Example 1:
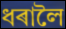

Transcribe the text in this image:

ধৰালৈ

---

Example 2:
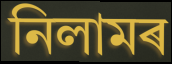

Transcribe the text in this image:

নিলামৰ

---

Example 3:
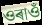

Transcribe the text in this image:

ওৰাওঁ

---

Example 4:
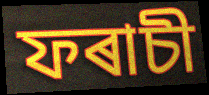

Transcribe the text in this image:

ফৰাচী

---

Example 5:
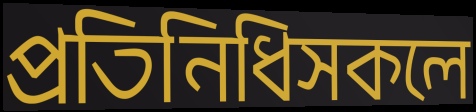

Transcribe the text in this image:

প্ৰতিনিধিসকলে